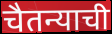
चैतन्याची